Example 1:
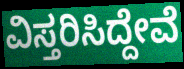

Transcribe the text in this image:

ವಿಸ್ತರಿಸಿದ್ದೇವೆ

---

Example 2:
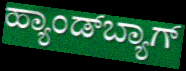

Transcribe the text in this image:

ಹ್ಯಾಂಡ್‌ಬ್ಯಾಗ್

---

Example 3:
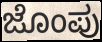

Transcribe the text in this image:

ಜೊಂಪು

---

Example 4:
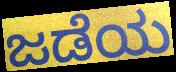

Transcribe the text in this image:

ಜಡೆಯ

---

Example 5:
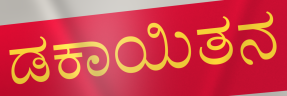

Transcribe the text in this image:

ಡಕಾಯಿತನ